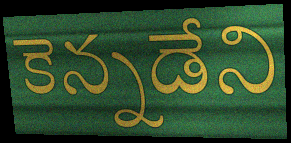
కెన్నడేని